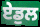
ਏਡੁਲ